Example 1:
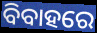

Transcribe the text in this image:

ବିବାହରେ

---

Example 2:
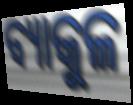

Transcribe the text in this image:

ବ୍ୟାକୁଳ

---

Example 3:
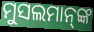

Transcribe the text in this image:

ମୁସଲମାନ୍‍ଙ୍କ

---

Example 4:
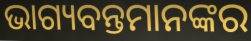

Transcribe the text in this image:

ଭାଗ୍ୟବନ୍ତମାନଙ୍କର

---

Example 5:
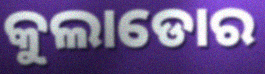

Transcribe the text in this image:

କୁଲାଡୋର